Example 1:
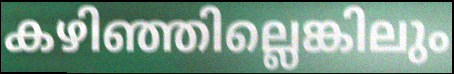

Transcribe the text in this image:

കഴിഞ്ഞില്ലെങ്കിലും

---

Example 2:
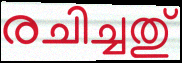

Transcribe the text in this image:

രചിച്ചതു്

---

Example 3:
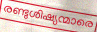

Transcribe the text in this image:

രണ്ടുശിഷ്യന്മാരെ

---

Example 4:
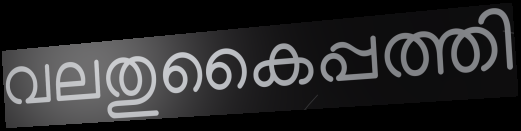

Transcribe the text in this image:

വലതുകൈപ്പത്തി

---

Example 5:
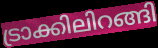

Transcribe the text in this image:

ട്രാക്കിലിറങ്ങി